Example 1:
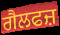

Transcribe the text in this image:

ਗੈਲਫਜ਼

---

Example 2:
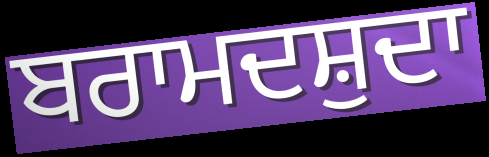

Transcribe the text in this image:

ਬਰਾਮਦਸ਼ੁਦਾ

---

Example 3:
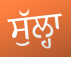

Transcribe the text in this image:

ਸੁੱਲ੍ਹਾ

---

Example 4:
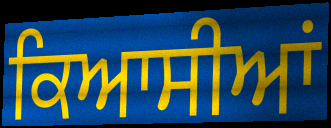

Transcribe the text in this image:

ਕਿਆਸੀਆਂ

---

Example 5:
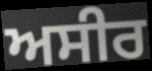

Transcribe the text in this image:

ਅਸੀਰ